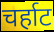
चर्हाट